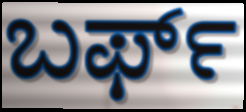
ಬರ್ಫ್